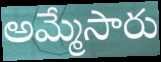
అమ్మేసారు